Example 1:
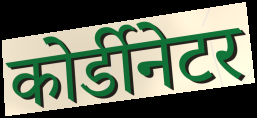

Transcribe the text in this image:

कोर्डीनेटर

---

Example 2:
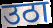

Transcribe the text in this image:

उठा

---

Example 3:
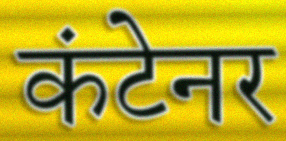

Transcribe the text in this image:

कंटेनर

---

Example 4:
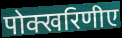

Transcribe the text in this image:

पोक्खरिणीए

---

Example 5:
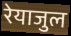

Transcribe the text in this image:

रेयाजुल